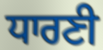
ਧਾਰਣੀ